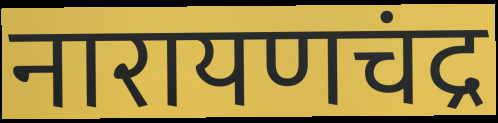
नारायणचंद्र